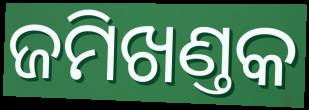
ଜମିଖଣ୍ତକ